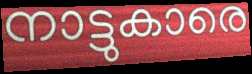
നാട്ടുകാരെ